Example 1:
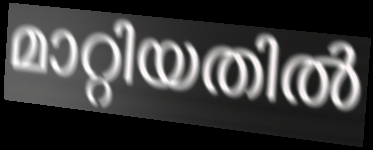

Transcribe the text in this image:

മാറ്റിയതിൽ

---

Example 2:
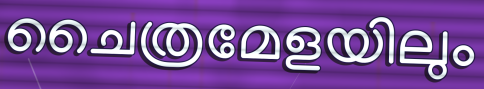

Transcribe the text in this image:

ചൈത്രമേളയിലും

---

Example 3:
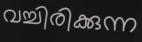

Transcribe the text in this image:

വച്ചിരിക്കുന്ന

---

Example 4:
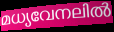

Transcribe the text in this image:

മധ്യവേനലിൽ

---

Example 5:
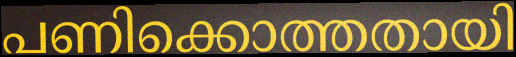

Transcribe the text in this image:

പണിക്കൊത്തതായി